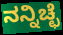
ನನ್ನಿಚ್ಛೆ